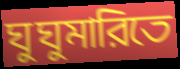
ঘুঘুমারিতে